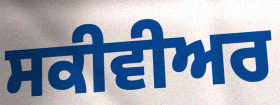
ਸਕੀਵੀਅਰ